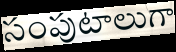
సంపుటాలుగా